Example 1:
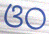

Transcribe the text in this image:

ଓଠ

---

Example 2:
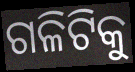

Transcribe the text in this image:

ଗଳିଟିକୁ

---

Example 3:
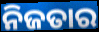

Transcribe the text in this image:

ନିଜତାର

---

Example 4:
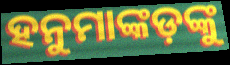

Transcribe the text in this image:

ହନୁମାଙ୍କଡ଼ଙ୍କୁ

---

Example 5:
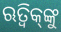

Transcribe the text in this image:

ଋତ୍ୱିକ୍‌ଙ୍କୁ